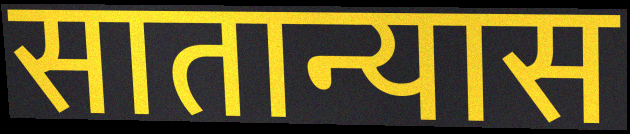
सातान्यास